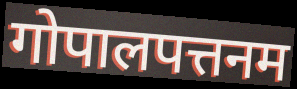
गोपालपत्तनम